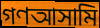
গণআসামি